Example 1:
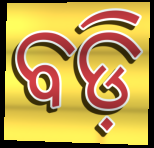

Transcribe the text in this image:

ବଡ଼ି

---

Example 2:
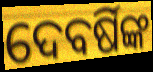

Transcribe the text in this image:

ଦେବର୍ଷିଙ୍କ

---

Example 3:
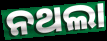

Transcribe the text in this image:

ନଥଲା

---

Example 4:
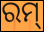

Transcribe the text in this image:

ରମ୍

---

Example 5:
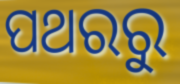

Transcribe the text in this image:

ପଥରରୁ